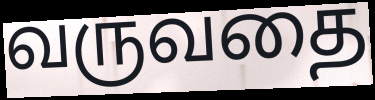
வருவதை